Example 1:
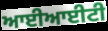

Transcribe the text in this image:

ਆਈਆਈਟੀ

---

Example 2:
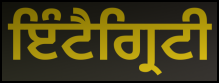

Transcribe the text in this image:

ਇੰਟੈਗ੍ਰਿਟੀ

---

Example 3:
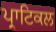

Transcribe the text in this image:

ਪ੍ਰਾਟਿਕਲ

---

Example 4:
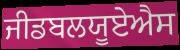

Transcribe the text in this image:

ਜੀਡਬਲਯੂਏਐਸ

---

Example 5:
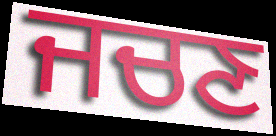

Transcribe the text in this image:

ਜਚਣ